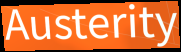
Austerity